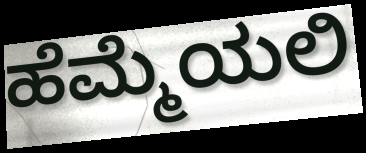
ಹೆಮ್ಮೆಯಲಿ